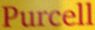
Purcell